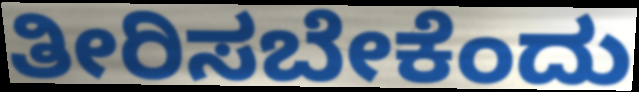
ತೀರಿಸಬೇಕೆಂದು